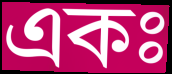
একঃ